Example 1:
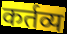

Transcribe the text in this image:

कर्तव्य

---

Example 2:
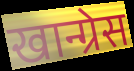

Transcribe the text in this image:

खान्ग्रेस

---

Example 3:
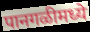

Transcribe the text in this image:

पानगळीमध्ये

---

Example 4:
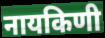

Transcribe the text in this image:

नायकिणी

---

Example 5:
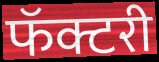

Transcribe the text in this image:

फॅक्टरी